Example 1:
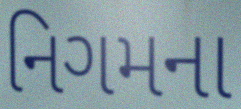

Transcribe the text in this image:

નિગમના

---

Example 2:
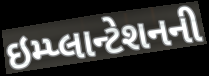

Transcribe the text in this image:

ઇમ્પ્લાન્ટેશનની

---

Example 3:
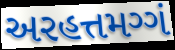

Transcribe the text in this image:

અરહત્તમગ્ગં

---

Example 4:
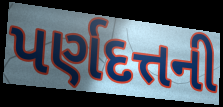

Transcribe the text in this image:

પર્ણદત્તની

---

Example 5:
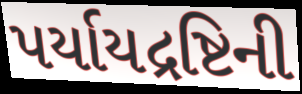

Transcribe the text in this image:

પર્યાયદ્રષ્ટિની